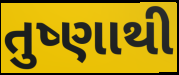
તુષ્ણાથી